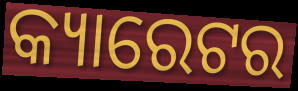
କ୍ୟାରେଟର